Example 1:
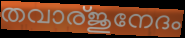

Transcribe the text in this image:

തവാര്ജുനേദം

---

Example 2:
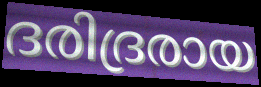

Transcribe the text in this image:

ദരിദ്രരായ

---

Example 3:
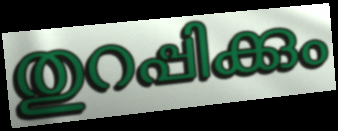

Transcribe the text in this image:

തുറപ്പിക്കും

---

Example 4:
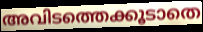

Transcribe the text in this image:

അവിടത്തെക്കൂടാതെ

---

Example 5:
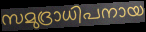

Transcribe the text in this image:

സമുദ്രാധിപനായ